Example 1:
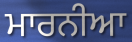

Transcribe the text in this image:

ਮਾਰਨੀਆ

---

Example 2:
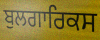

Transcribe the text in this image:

ਬੁਲਗਾਰਿਕਸ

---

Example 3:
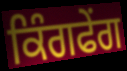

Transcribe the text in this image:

ਕਿੰਗਫੇਂਗ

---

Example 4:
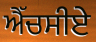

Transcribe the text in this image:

ਐੱਚਸੀਏ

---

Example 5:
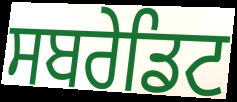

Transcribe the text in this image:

ਸਬਰੇਡਿਟ